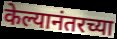
केल्यानंतरच्या